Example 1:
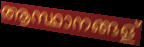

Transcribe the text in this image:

ആസ്ഥാനങ്ങള്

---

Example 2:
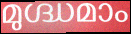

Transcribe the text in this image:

മുഗ്ദ്ധമാം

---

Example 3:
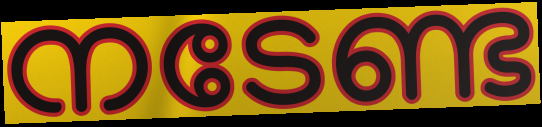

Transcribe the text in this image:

നടേണ്ട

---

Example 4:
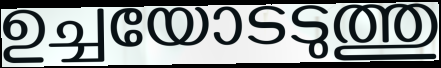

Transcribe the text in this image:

ഉച്ചയോടടുത്തു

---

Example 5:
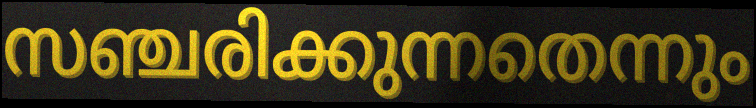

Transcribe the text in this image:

സഞ്ചരിക്കുന്നതെന്നും